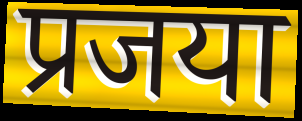
प्रजया